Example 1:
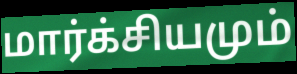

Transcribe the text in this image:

மார்க்சியமும்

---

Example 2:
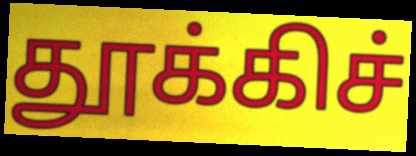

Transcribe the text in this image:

தூக்கிச்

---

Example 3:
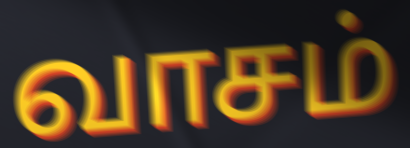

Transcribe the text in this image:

வாசம்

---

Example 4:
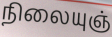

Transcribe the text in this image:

நிலையுஞ்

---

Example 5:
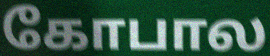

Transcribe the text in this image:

கோபால